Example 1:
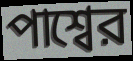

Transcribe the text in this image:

পাশ্বের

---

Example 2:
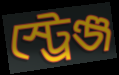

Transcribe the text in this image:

স্ট্রেঞ্জ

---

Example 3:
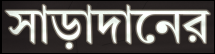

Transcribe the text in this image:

সাড়াদানের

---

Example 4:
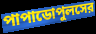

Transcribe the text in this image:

পাপাডোপুলসের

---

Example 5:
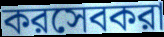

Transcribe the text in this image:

করসেবকরা